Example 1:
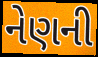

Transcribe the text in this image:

નેણની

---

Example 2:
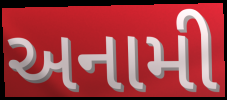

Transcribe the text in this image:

અનામી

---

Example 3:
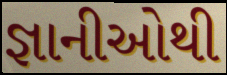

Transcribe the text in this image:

જ્ઞાનીઓથી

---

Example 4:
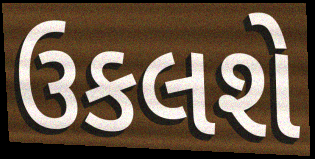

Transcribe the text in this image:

ઉકલશે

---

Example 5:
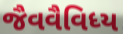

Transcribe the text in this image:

જૈવવૈવિધ્ય